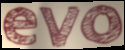
evo